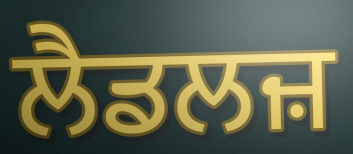
ਲੈਡਲਜ਼